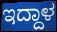
ಇದ್ದಾಳ